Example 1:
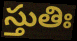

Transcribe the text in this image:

స్తుతిః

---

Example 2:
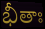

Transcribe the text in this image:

భీతాః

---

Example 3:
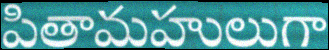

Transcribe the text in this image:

పితామహులుగా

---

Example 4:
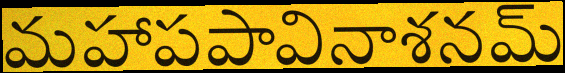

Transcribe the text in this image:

మహాపపావినాశనమ్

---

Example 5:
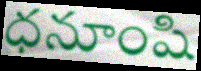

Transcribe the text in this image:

ధనూంషి